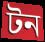
টন